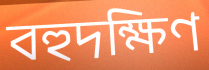
বহুদক্ষিণ